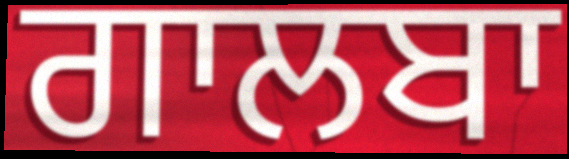
ਗਾਲਬਾ